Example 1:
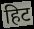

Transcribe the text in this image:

हिट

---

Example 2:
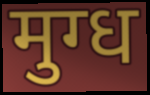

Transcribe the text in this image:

मुग्ध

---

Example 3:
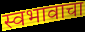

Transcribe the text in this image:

स्वभावाचा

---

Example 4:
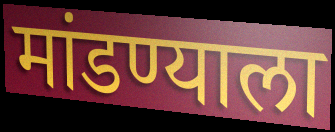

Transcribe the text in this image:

मांडण्याला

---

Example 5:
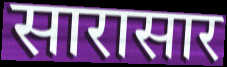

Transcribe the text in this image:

सारासार